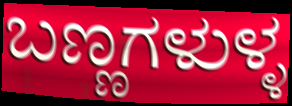
ಬಣ್ಣಗಳುಳ್ಳ